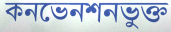
কনভেনশনভুক্ত